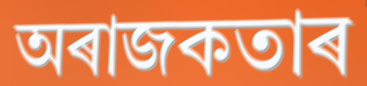
অৰাজকতাৰ